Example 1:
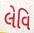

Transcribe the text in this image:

લેવિ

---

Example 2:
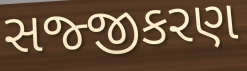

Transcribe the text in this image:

સજ્જીકરણ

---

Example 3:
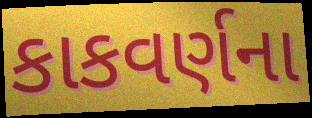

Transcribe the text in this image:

કાકવર્ણના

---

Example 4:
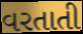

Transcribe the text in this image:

વરતાતી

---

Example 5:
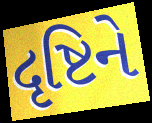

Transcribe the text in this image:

દૃષ્ટિને